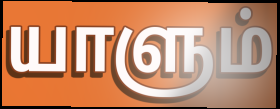
யாளும்